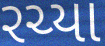
રચ્યા